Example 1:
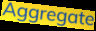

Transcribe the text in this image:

Aggregate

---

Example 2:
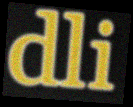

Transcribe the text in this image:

dli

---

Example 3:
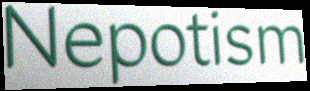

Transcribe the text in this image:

Nepotism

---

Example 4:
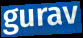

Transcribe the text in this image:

gurav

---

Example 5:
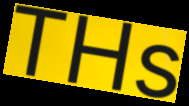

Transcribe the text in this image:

THs